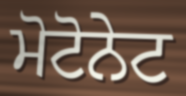
ਮੋਟੋਨੇਟ